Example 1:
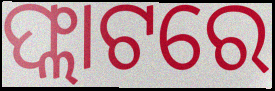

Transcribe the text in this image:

ଫ୍ଲାଟରେ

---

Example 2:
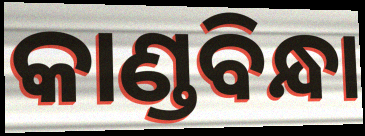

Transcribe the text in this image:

କାଣ୍ଡବିନ୍ଧା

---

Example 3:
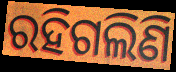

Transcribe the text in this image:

ରହିଗଲିଣି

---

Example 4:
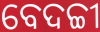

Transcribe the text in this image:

ବେଦଚ୍ଚୀ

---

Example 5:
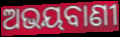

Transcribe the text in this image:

ଅଭୟବାଣୀ